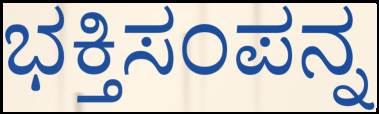
ಭಕ್ತಿಸಂಪನ್ನ